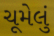
ચૂમેલું